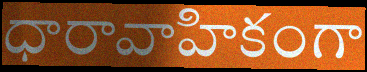
ధారావాహికంగా